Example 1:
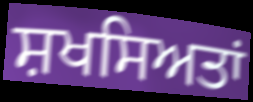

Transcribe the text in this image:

ਸ਼ਖਸਿਅਤਾਂ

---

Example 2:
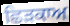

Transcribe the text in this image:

ਛਿੜਕਾਅ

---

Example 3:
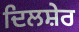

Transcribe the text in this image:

ਦਿਲਸ਼ੇਰ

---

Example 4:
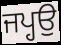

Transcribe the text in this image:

ਜਪ੍ਹਉ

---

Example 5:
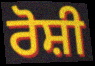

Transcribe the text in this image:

ਰੋਸ਼ੀ